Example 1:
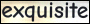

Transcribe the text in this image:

exquisite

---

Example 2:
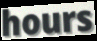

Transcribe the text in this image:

hours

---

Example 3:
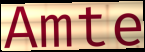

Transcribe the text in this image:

Amte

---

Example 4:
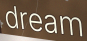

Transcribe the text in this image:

dream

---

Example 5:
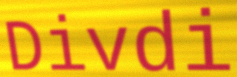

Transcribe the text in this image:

Divdi